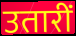
उतारीं